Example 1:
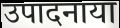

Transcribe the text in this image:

उपादनाया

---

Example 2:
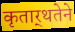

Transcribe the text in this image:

कृतार्थतेने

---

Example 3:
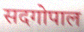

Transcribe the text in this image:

सदगोपाल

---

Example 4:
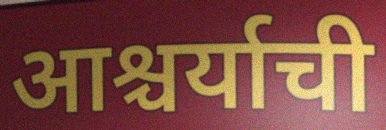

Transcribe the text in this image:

आश्चर्याची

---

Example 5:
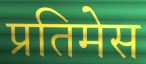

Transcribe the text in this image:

प्रतिमेस